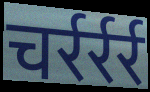
चर्रर्रर्र